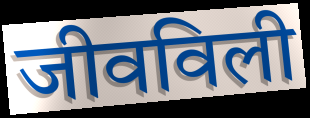
जीवविली